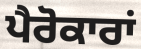
ਪੈਰੋਕਾਰਾਂ